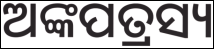
ଅଙ୍କପତ୍ରସ୍ୟ